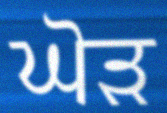
ਘੋੜ